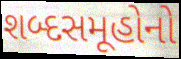
શબ્દસમૂહોનો